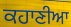
ਕਹਾਣੀਆ